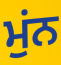
ਮੁਂਨ